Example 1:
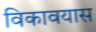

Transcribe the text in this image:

विकावयास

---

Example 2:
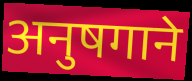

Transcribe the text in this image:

अनुषगाने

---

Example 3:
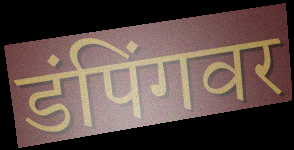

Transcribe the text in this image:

डंपिंगवर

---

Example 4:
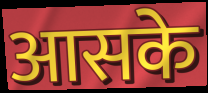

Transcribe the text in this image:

आसके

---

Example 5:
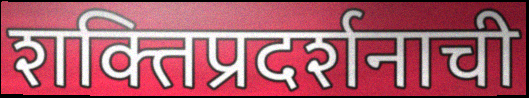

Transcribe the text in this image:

शक्तिप्रदर्शनाची